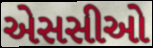
એસસીઓ